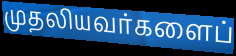
முதலியவர்களைப்